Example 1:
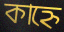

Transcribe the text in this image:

কাহ্নে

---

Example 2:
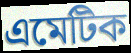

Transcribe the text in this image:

এমেটিক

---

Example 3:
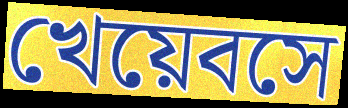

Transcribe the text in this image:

খেয়েবসে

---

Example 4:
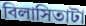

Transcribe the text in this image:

বিলাসিতাটা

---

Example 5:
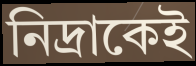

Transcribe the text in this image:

নিদ্রাকেই